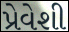
પ્રેવેશી